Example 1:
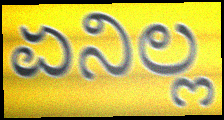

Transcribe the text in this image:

ಏನಿಲ್ಲ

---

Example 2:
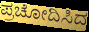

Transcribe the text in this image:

ಪ್ರಚೋದಿಸಿದ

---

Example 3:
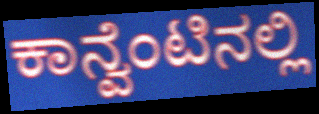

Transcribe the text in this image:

ಕಾನ್ವೆಂಟಿನಲ್ಲಿ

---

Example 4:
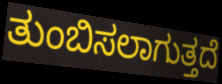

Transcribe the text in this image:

ತುಂಬಿಸಲಾಗುತ್ತದೆ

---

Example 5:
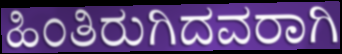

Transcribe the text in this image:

ಹಿಂತಿರುಗಿದವರಾಗಿ